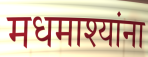
मधमाश्यांना